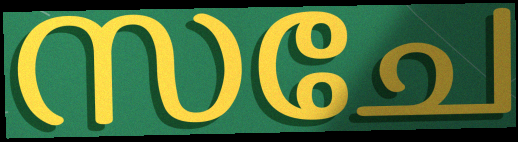
സചേ